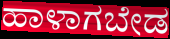
ಹಾಳಾಗಬೇಡ